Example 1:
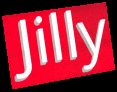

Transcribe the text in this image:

Jilly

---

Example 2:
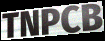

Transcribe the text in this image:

TNPCB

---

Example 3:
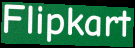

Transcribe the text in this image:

Flipkart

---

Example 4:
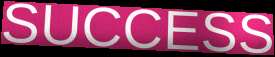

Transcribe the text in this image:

SUCCESS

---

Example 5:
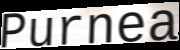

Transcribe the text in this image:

Purnea